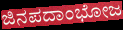
ಜಿನಪದಾಂಭೋಜ